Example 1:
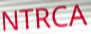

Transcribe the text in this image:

NTRCA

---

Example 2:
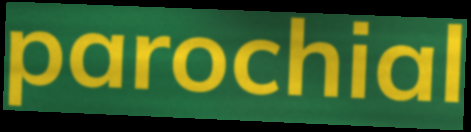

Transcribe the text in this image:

parochial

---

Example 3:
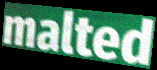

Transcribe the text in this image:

malted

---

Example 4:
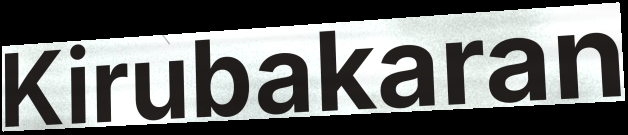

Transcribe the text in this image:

Kirubakaran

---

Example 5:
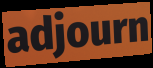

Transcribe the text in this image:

adjourn